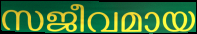
സജീവമായ